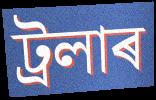
ট্ৰলাৰ